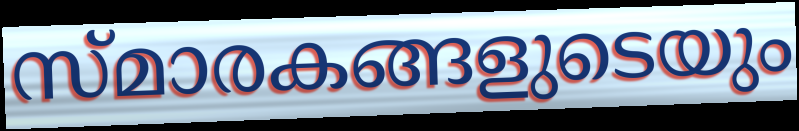
സ്മാരകങ്ങളുടെയും